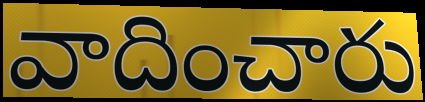
వాదించారు